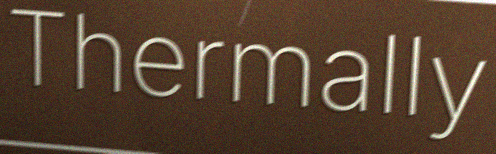
Thermally